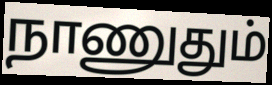
நாணுதும்